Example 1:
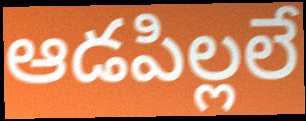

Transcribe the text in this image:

ఆడపిల్లలే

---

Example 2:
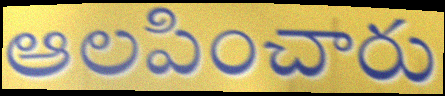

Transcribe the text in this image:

ఆలపించారు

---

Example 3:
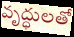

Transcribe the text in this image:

వృద్ధులతో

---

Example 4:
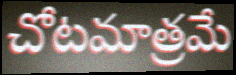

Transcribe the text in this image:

చోటమాత్రమే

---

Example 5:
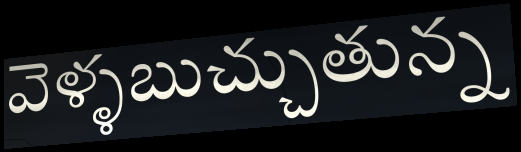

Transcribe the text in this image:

వెళ్ళబుచ్చుతున్న